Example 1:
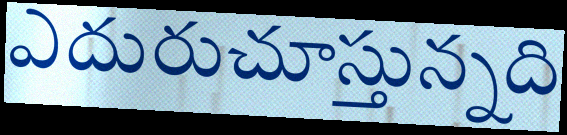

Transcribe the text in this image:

ఎదురుచూస్తున్నది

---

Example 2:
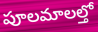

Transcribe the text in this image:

పూలమాలల్తో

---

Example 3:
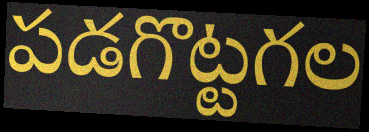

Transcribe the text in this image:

పడగొట్టగల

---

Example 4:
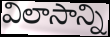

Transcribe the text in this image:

విలాసాన్ని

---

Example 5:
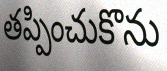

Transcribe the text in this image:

తప్పించుకొను